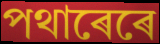
পথাৰেৰে